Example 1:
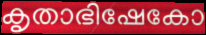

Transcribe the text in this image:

കൃതാഭിഷേകോ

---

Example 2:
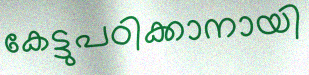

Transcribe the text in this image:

കേട്ടുപഠിക്കാനായി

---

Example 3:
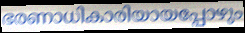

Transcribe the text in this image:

ഭരണാധികാരിയായപ്പോഴും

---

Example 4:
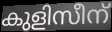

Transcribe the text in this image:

കുളിസീന്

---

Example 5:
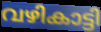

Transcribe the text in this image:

വഴികാട്ടി